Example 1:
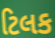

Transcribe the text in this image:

ટિલક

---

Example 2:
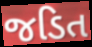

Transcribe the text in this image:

જડિત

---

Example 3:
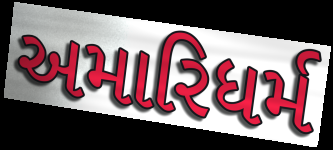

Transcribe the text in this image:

અમારિધર્મ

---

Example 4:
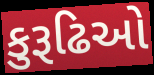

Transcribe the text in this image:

કુરૂઢિઓ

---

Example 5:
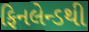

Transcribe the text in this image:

ફિનલેન્ડથી